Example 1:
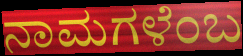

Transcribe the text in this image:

ನಾಮಗಳೆಂಬ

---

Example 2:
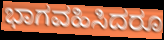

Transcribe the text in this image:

ಭಾಗವಹಿಸಿದರೂ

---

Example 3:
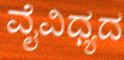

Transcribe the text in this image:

ವೈವಿಧ್ಯದ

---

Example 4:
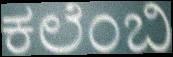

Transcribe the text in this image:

ಕಲೆಂಬಿ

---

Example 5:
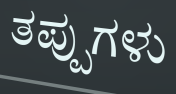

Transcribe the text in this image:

ತಪ್ಪುಗಳು